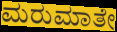
ಮರುಮಾತೇ